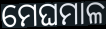
ମେଘମାଳ